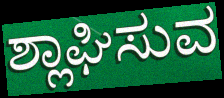
ಶ್ಲಾಘಿಸುವ